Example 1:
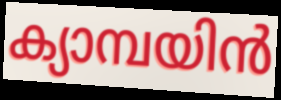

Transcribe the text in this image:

ക്യാമ്പയിൻ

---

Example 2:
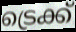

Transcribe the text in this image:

ട്രെക്ക്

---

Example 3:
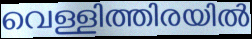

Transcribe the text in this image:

വെള്ളിത്തിരയിൽ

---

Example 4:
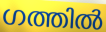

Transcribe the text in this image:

ഗത്തിൽ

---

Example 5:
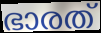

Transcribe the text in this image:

ഭാരത്